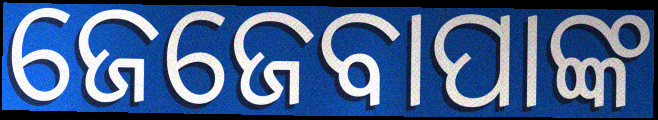
ଜେଜେବାପାଙ୍କ